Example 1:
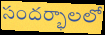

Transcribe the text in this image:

సందర్భాలలో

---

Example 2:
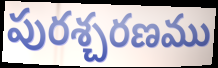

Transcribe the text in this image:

పురశ్చరణము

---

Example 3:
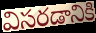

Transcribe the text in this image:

విసరడానికి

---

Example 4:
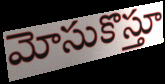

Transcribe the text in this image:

మోసుకొస్తూ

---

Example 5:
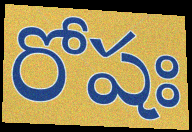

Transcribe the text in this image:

రోషః